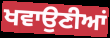
ਖਵਾਉਣੀਆਂ